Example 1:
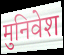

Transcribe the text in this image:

मुनिवेश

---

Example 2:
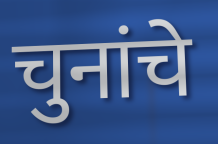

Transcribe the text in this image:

चुनांचे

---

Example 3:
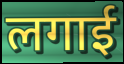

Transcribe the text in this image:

लगाई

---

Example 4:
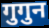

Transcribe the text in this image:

गुगुन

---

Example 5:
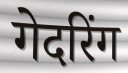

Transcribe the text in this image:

गेदरिंग